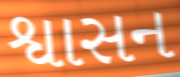
શ્વાસન